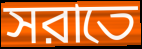
সরাতে